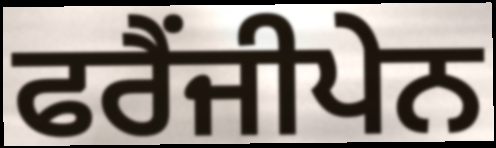
ਫਰੈਂਜੀਪੇਨ